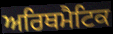
ਅਰਿਥਮੈਟਿਕ